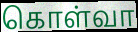
கொள்வா